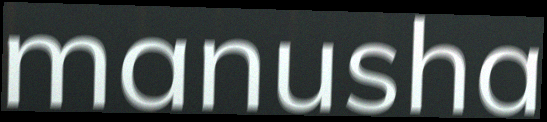
manusha